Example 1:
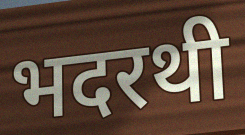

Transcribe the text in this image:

भदरथी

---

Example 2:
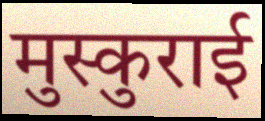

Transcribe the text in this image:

मुस्कुराई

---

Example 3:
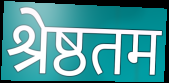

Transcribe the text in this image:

श्रेष्ठतम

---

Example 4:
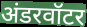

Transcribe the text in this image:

अंडरवॉटर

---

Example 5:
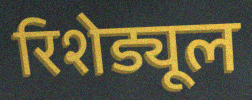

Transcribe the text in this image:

रिशेड्यूल